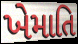
ખેમાતિ